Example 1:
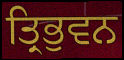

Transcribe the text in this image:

ਤ੍ਰਿਭੁਵਨ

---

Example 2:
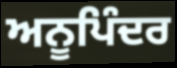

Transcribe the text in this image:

ਅਨੂਪਿੰਦਰ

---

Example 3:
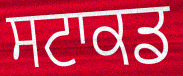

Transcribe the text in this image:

ਸਟਾਕਡ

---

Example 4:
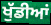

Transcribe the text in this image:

ਖੁੱਡੀਆਂ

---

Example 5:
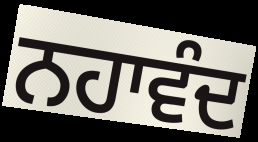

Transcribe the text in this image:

ਨਹਾਵੰਦ